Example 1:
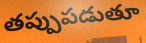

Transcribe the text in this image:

తప్పుపడుతూ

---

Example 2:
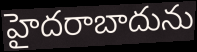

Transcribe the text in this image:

హైదరాబాదును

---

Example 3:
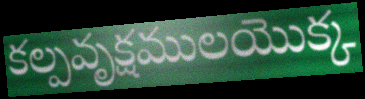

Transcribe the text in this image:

కల్పవృక్షములయొక్క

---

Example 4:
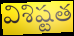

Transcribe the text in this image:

విశిష్టత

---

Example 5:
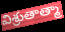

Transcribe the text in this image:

విశ్రుతాత్మా